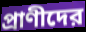
প্রাণীদের